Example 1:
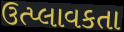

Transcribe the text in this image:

ઉત્પ્લાવકતા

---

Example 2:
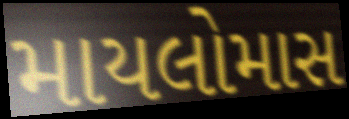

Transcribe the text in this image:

માયલોમાસ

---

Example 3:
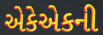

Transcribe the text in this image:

એકેએકની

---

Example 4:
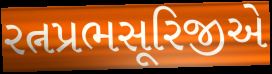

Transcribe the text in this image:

રત્નપ્રભસૂરિજીએ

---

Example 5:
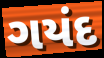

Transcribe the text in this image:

ગયંદ